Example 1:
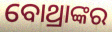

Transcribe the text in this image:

ବୋଥ୍ରାଙ୍କର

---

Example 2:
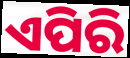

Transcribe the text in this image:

ଏପିରି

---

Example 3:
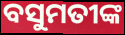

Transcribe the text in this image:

ବସୁମତୀଙ୍କ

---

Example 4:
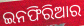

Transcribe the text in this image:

ଇନଫିରିଆର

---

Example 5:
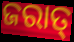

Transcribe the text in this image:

ଜରାତ୍